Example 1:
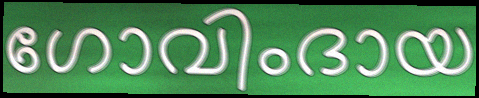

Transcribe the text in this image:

ഗോവിംദായ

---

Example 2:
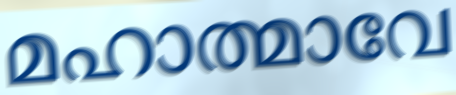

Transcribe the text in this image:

മഹാത്മാവേ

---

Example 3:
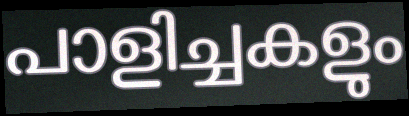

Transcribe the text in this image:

പാളിച്ചകളും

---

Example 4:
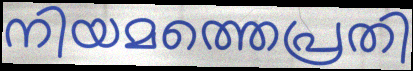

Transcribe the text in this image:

നിയമത്തെപ്രതി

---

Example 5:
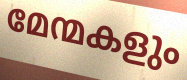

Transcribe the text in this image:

മേന്മകളും